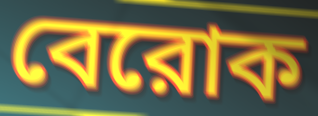
বেরোক